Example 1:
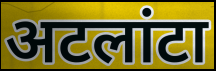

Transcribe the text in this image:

अटलांटा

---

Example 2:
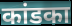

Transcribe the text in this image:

कांडका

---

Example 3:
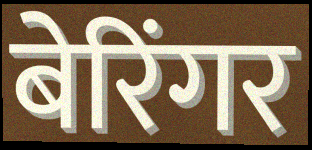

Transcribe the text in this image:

बेरिंगर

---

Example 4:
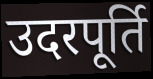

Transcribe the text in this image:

उदरपूर्ति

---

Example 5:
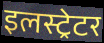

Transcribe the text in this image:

इलस्ट्रेटर